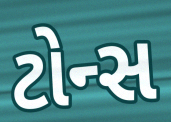
ટોન્સ